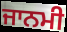
ਜਾਨਮੀ